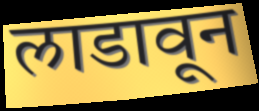
लाडावून